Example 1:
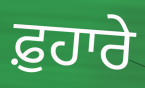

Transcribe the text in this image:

ਫ਼ੁਹਾਰੇ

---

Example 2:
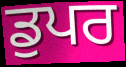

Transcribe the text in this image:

ਡੁਪਰ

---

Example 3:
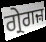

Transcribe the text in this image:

ਗ੍ਰੇਗਜ਼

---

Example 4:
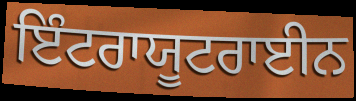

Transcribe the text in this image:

ਇੰਟਰਾਯੂਟਰਾਈਨ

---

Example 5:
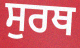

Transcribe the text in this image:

ਸੁਰਥ